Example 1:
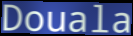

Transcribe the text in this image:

Douala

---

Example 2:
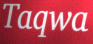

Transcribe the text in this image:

Taqwa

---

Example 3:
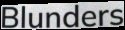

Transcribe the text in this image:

Blunders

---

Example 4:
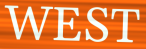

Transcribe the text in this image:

WEST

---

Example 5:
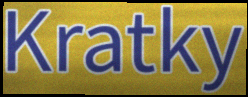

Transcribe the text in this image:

Kratky